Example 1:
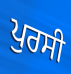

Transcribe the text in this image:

ਪੁਰਸੀ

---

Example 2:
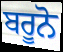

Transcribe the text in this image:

ਬਰੂਨੋ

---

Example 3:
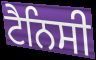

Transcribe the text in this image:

ਟੈਨਿਸੀ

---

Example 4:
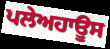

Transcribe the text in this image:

ਪਲੇਅਹਾਊਸ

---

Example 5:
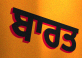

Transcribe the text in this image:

ਬਾਰਤ